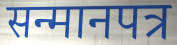
सन्मानपत्र